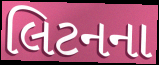
લિટનના